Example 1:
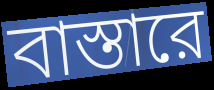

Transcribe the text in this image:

বাস্তারে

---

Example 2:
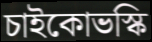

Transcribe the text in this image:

চাইকোভস্কি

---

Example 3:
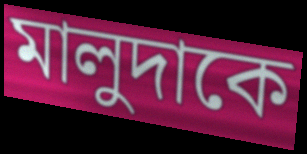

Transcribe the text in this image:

মালুদাকে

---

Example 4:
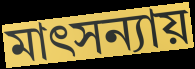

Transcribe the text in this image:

মাৎসন্যায়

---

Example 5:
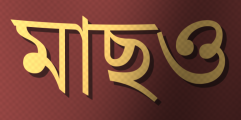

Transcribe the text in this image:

মাছও